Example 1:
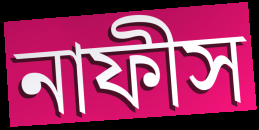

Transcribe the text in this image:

নাফীস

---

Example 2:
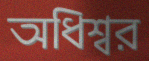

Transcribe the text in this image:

অধিশ্বর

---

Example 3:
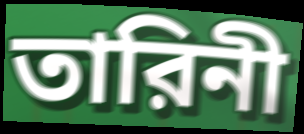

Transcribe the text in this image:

তারিনী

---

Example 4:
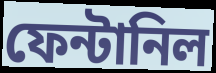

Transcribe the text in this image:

ফেন্টানিল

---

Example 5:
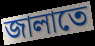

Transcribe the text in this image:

জালাতে